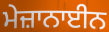
ਮੇਜ਼ਾਨਾਈਨ